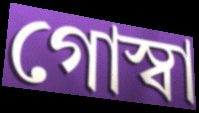
গোস্বা